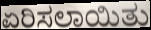
ಏರಿಸಲಾಯಿತು